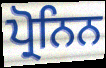
ਪ੍ਰੋਨਿਨ